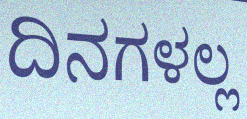
ದಿನಗಳಲ್ಲ